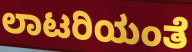
ಲಾಟರಿಯಂತೆ